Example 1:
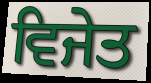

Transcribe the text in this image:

ਵਿਜੇਤ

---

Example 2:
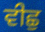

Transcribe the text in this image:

ਵੀਛੁ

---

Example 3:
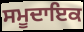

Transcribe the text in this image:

ਸਮੂਦਾਇਕ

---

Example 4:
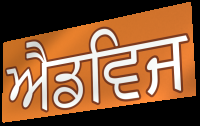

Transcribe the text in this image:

ਐਡਵਿਜ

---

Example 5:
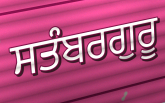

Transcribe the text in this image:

ਸਤੰਬਰਗੁਰੂ